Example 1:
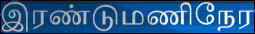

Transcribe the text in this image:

இரண்டுமணிநேர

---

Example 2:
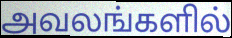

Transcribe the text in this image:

அவலங்களில்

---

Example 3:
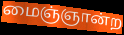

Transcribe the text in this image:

மைஞ்ஞான்ற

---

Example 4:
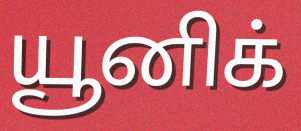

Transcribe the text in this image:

யூனிக்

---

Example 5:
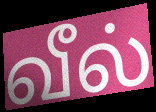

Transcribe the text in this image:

வீல்